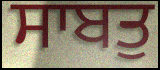
ਸਾਬਤੁ